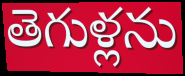
తెగుళ్లను